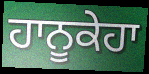
ਹਾਨੂਕੇਹਾ